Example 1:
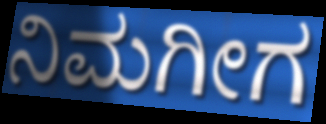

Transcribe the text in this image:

ನಿಮಗೀಗ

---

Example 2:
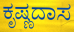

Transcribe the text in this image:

ಕೃಷ್ಣದಾಸ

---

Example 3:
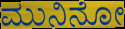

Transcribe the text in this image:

ಮುನಿನೋ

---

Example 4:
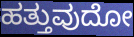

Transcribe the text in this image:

ಹತ್ತುವುದೋ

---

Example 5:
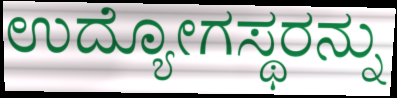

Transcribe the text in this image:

ಉದ್ಯೋಗಸ್ಥರನ್ನು